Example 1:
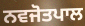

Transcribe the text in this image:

ਨਵਜੋਤਪਾਲ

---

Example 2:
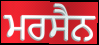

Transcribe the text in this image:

ਮਰਸੈਨ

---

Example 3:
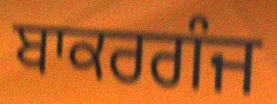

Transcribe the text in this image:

ਬਾਕਰਗੰਜ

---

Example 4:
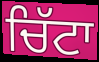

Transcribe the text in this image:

ਚਿੱਟਾ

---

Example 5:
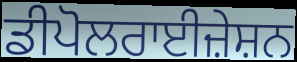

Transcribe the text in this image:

ਡੀਪੋਲਰਾਈਜ਼ੇਸ਼ਨ